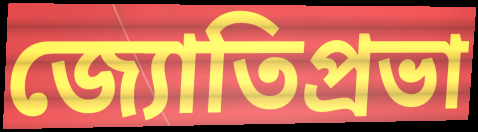
জ্যোতিপ্রভা